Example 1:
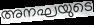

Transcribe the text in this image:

അനഘയുടെ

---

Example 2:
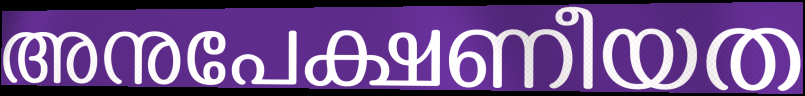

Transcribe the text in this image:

അനുപേക്ഷണീയത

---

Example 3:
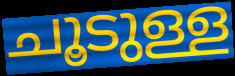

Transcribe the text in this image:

ചൂടുള്ള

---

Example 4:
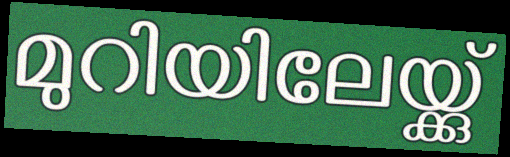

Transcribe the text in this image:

മുറിയിലേയ്ക്കു്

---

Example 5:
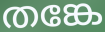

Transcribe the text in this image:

തങ്കേ